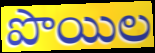
పొయిల